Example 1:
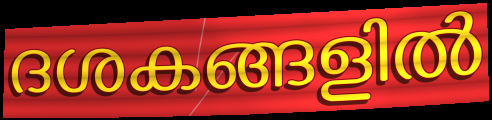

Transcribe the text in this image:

ദശകങ്ങളിൽ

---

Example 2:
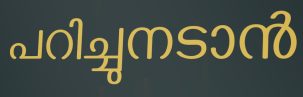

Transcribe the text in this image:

പറിച്ചുനടാൻ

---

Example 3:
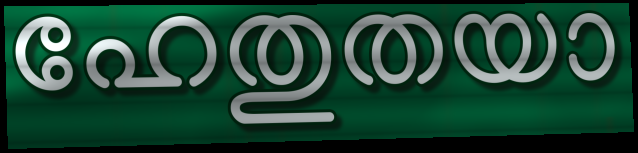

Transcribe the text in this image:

ഹേതുതയാ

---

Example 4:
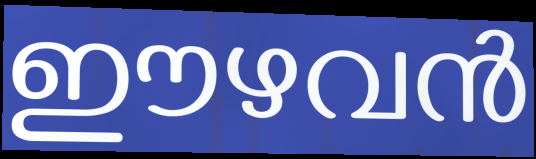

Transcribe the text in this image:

ഈഴവൻ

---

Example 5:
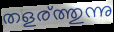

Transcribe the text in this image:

തളര്ത്തുന്നു